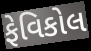
ફેવિકોલ